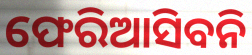
ଫେରିଆସିବନି